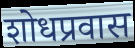
शोधप्रवास